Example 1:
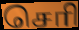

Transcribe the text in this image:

செரி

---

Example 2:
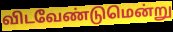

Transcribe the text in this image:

விடவேண்டுமென்று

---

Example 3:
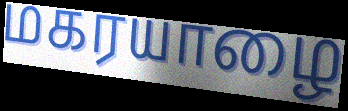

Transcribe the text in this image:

மகரயாழை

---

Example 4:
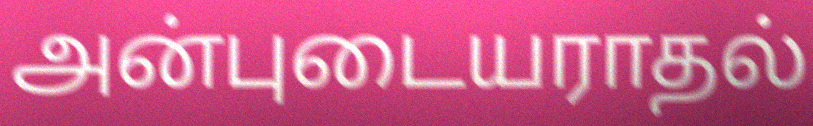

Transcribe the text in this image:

அன்புடையராதல்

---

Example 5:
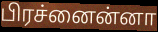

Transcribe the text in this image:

பிரச்னைன்னா